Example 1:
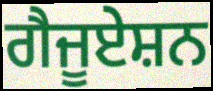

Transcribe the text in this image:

ਗੈਜੂਏਸ਼ਨ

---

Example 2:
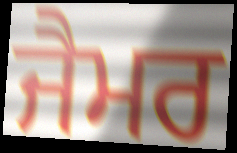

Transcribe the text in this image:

ਜੈਮਰ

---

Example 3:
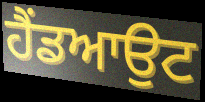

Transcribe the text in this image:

ਹੈਂਡਆਉਟ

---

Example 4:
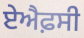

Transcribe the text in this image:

ਏਐਫ਼ਸੀ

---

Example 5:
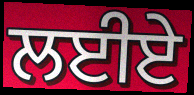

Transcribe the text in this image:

ਲਈਏ